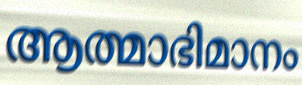
ആത്മാഭിമാനം